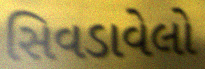
સિવડાવેલો